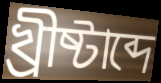
খ্রীষ্টাব্দে